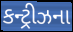
કન્ટ્રીઝના